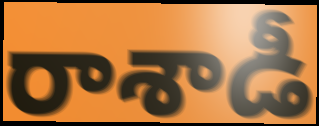
రాశాడీ